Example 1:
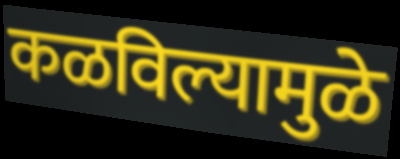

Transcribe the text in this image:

कळविल्यामुळे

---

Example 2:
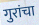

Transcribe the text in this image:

गुरांचा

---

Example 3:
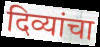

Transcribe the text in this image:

दिव्यांचा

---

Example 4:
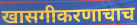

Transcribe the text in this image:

खासगीकरणाचाच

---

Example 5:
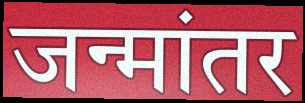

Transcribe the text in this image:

जन्मांतर